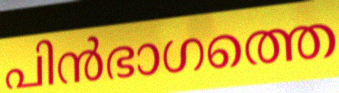
പിൻഭാഗത്തെ